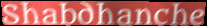
Shabdhanche